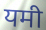
यमी